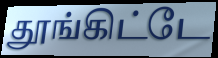
தூங்கிட்டே